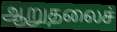
ஆறுதலைச்